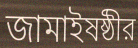
জামাইষষ্ঠীর